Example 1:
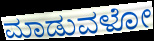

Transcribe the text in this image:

ಮಾಡುವಳೋ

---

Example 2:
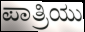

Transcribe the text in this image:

ಪಾತ್ರಿಯು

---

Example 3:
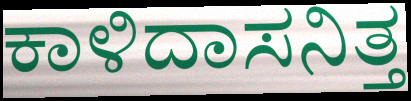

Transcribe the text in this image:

ಕಾಳಿದಾಸನಿತ್ತ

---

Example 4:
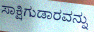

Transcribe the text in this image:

ಸಾಕ್ಷಿಗುಡಾರವನ್ನು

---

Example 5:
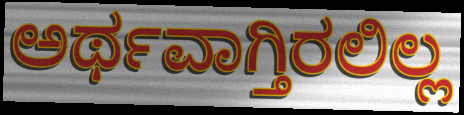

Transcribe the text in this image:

ಅರ್ಥವಾಗ್ತಿರಲಿಲ್ಲ